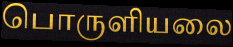
பொருளியலை